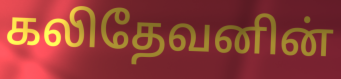
கலிதேவனின்